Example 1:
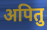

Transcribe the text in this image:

अपितु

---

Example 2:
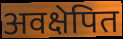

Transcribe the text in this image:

अवक्षेपित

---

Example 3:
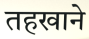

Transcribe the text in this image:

तहखाने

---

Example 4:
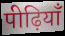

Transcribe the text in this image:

पीढ़ियाँ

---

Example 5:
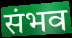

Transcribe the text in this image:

संभव